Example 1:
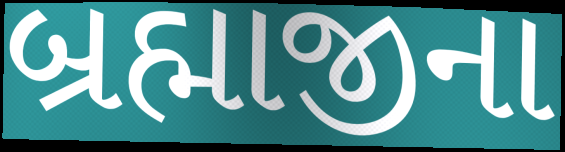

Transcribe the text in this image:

બ્રહ્માજીના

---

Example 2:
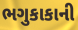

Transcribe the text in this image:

ભગુકાકાની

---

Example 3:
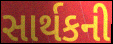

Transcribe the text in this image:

સાર્થકની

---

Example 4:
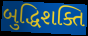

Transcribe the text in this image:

બુદ્ધિશક્તિ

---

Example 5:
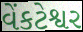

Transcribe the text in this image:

વેંકટેશ્વર